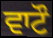
ਵਾਟੌ